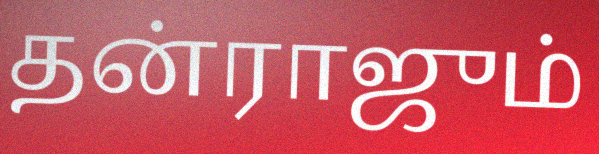
தன்ராஜும்